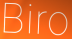
Biro